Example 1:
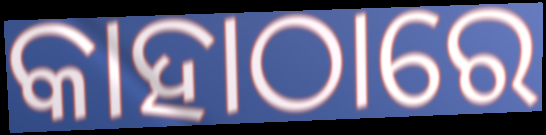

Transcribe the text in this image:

କାହାଠାରେ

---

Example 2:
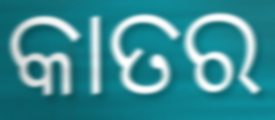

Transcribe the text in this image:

କାତର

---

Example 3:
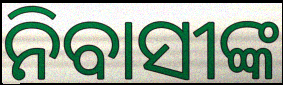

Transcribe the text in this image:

ନିବାସୀଙ୍କ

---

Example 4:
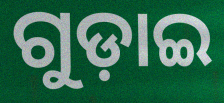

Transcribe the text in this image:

ଗୁଡ଼ାଇ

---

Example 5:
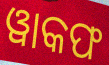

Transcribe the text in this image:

ୱାକଫ